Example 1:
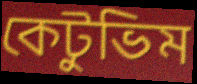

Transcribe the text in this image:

কেটুভিম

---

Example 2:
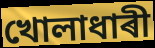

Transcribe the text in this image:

খোলাধাৰী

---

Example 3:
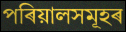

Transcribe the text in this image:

পৰিয়ালসমূহৰ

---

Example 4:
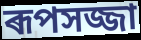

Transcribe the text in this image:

ৰূপসজ্জা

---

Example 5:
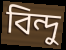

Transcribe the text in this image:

বিন্দু